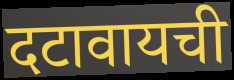
दटावायची